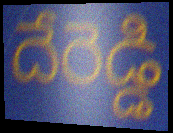
దేరెడ్డి